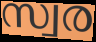
സ്വര